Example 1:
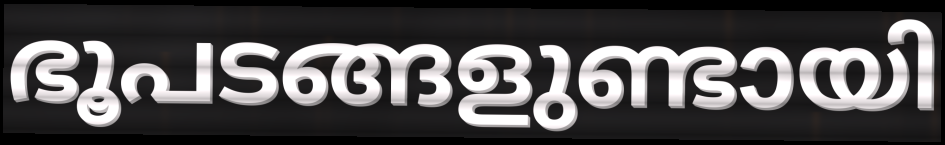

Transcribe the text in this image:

ഭൂപടങ്ങളുണ്ടായി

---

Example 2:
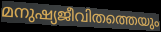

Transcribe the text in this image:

മനുഷ്യജീവിതത്തെയും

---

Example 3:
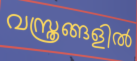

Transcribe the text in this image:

വസ്ത്രങ്ങളിൽ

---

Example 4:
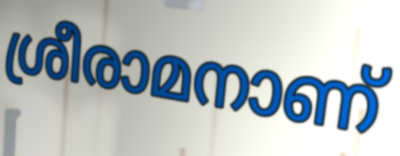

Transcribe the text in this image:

ശ്രീരാമനാണ്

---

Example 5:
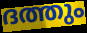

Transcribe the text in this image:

ദത്തും